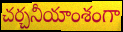
చర్చనీయాంశంగా